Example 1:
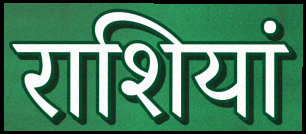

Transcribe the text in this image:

राशियां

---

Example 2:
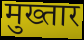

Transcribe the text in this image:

मुख्तार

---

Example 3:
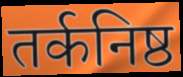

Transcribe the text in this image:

तर्कनिष्ठ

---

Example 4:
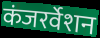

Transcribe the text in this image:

कंजरर्वेशन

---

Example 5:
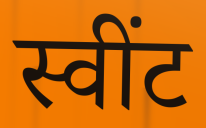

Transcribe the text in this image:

स्वींट